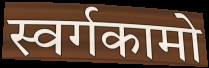
स्वर्गकामो